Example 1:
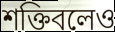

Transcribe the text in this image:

শক্তিবলেও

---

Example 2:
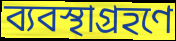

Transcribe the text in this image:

ব্যবস্থাগ্রহণে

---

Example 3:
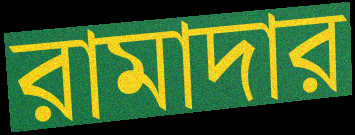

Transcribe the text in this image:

রামাদার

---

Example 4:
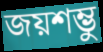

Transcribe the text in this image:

জয়শম্ভু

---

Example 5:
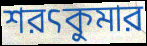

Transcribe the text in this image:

শরৎকুমার